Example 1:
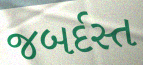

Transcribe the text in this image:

જબર્દસ્ત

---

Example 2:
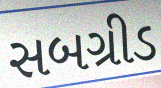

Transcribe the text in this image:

સબગ્રીડ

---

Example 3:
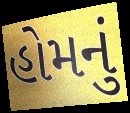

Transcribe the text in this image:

હોમનું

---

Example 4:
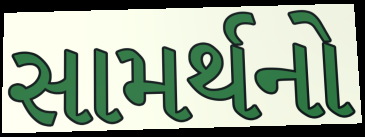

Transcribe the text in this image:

સામર્થનો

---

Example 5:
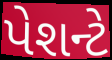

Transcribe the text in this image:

પેશન્ટે